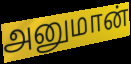
அனுமான்